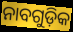
ନାବଗୁଡ଼ିକ